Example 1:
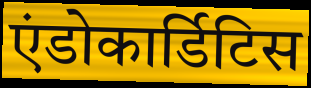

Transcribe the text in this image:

एंडोकार्डिटिस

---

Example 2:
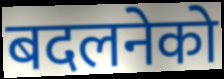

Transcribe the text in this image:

बदलनेको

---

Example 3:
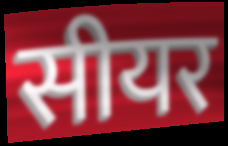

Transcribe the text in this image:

सीयर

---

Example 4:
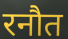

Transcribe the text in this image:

रनौत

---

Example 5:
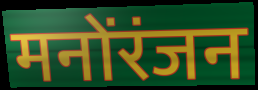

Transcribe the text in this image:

मनोंरंजन